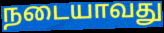
நடையாவது